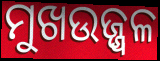
ମୁଖଉଜ୍ଜ୍ୱଳ